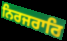
ਨਿਰਜਰਾਰਿ